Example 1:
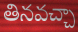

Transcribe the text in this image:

తినవచ్చా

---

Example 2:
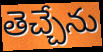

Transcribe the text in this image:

తెచ్చేను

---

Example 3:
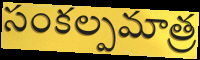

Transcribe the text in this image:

సంకల్పమాత్ర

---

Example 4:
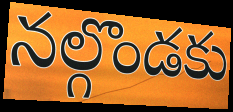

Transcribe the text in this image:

నల్గొండకు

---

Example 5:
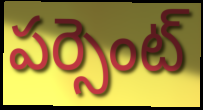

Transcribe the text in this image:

పర్సెంట్